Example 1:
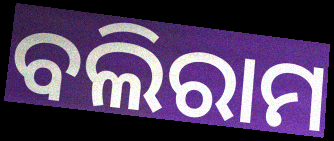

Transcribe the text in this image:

ବଲିରାମ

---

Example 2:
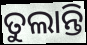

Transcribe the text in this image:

ତୁଲାନ୍ତି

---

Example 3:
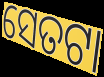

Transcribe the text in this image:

ସେତଟା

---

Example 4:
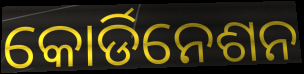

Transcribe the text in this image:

କୋର୍ଡିନେଶନ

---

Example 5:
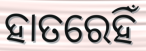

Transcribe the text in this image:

ହାତରେହିଁ